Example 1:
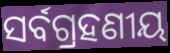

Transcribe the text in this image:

ସର୍ବଗ୍ରହଣୀୟ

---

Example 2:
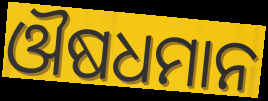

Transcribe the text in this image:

ଔଷଧମାନ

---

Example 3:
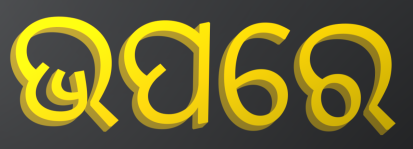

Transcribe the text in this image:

ଭପରେ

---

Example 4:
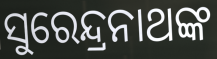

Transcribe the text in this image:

ସୁରେନ୍ଦ୍ରନାଥଙ୍କ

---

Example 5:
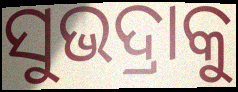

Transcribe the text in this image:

ସୁଭଦ୍ରାକୁ